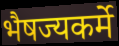
भैषज्यकर्मे